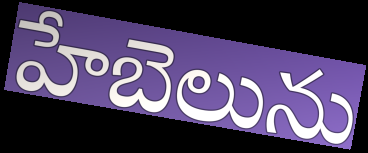
హేబెలును